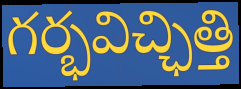
గర్భవిచ్ఛిత్తి